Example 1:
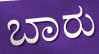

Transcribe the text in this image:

ಬಾರು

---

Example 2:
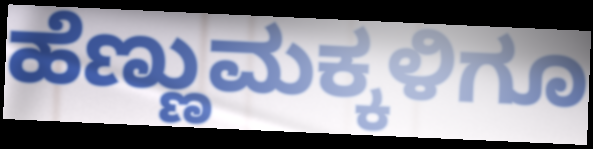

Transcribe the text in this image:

ಹೆಣ್ಣುಮಕ್ಕಳಿಗೂ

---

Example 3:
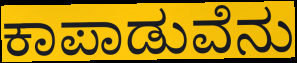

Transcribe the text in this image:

ಕಾಪಾಡುವೆನು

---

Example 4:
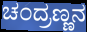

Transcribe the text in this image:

ಚಂದ್ರಣ್ಣನ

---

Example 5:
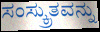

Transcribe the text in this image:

ಸಂಸ್ಕ್ರುತವನ್ನು